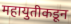
महायुतीकडून